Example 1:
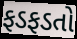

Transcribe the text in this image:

ફડફડતો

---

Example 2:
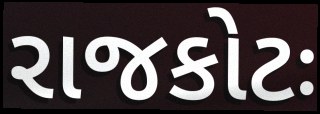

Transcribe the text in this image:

રાજકોટઃ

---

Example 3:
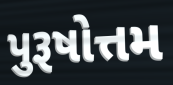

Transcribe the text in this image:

પુરૂષોત્તમ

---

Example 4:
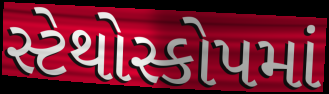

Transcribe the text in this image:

સ્ટેથોસ્કોપમાં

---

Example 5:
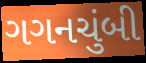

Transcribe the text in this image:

ગગનચુંબી